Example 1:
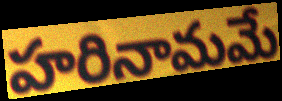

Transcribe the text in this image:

హరినామమే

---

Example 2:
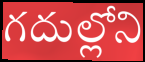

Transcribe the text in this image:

గదుల్లోని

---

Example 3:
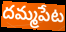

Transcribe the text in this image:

దమ్మపేట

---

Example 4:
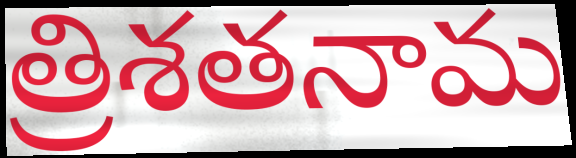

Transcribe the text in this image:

త్రిశతనామ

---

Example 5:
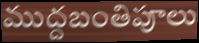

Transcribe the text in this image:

ముద్దబంతిపూలు